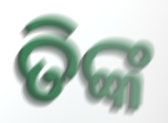
ତିଙ୍କ